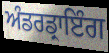
ਅੰਡਰਡ੍ਰਾਇੰਗ